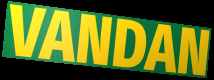
VANDAN